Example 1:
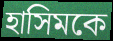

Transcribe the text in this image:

হাসিমকে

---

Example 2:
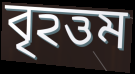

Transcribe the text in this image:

বৃহত্তম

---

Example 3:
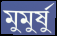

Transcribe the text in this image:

মুমুর্ষু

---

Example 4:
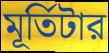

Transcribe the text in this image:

মূর্তিটার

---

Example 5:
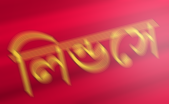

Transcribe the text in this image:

লিন্ডসে